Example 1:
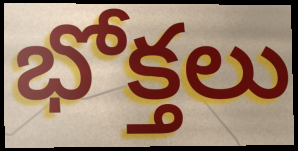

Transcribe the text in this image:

భోక్తలు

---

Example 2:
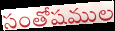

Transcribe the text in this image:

సంతోషముల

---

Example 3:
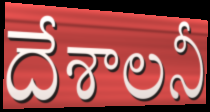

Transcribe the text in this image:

దేశాలనీ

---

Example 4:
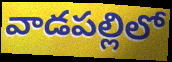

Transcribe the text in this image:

వాడపల్లిలో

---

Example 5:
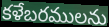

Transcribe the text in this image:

కళేబరములను